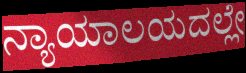
ನ್ಯಾಯಾಲಯದಲ್ಲೇ